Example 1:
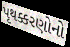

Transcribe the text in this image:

પૃથક્કરણોનો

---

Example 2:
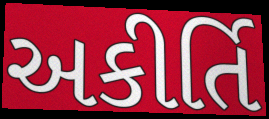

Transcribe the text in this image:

અકીર્તિ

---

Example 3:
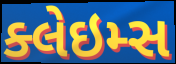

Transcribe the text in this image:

ક્લેઇમ્સ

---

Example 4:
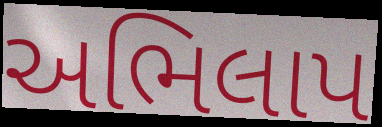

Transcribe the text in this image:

અભિલાપ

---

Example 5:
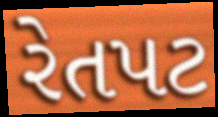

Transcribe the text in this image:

રેતપટ